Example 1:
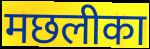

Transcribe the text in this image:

मछलीका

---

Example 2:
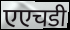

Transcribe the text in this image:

एएचडी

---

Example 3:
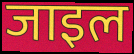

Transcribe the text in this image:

जाइल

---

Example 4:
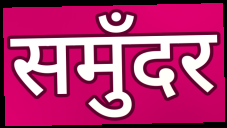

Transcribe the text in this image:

समुँदर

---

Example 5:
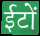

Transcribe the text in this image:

ईटों